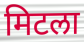
मिटला